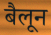
बैलून